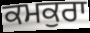
ਕਮਕੁਰਾ